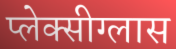
प्लेक्सीग्लास